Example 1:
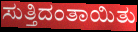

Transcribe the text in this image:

ಸುತ್ತಿದಂತಾಯಿತು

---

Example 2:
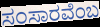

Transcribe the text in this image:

ಸಂಸಾರವೆಂಬ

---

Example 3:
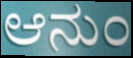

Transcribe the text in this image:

ಆನುಂ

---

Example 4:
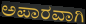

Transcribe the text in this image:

ಅಪಾರವಾಗಿ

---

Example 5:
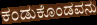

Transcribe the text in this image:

ಕಂಡುಕೊಂಡವನು